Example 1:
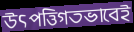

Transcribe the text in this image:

উৎপত্তিগতভাবেই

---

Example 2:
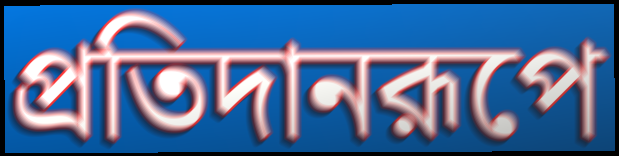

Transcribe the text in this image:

প্রতিদানরূপে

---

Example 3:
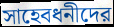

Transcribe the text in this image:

সাহেবধনীদের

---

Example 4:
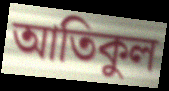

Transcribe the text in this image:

আতিকুল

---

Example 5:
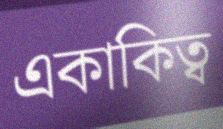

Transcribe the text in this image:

একাকিত্ব